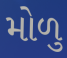
મોળુ